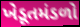
ખેડૂતમંડળો